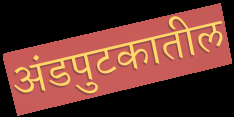
अंडपुटकातील